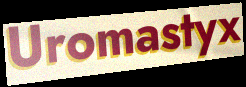
Uromastyx